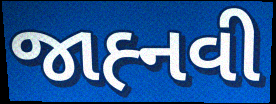
જાહ્‍નવી